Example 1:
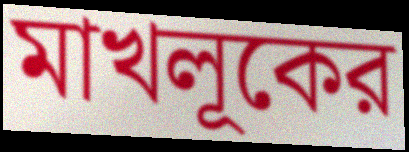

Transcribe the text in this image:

মাখলূকের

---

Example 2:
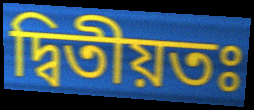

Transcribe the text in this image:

দ্বিতীয়তঃ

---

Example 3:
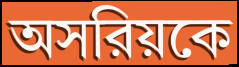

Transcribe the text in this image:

অসরিয়কে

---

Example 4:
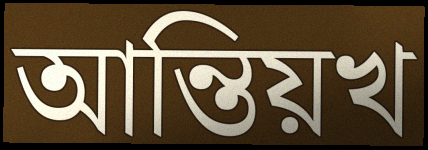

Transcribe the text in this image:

আন্তিয়খ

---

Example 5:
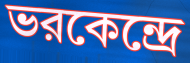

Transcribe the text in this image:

ভরকেন্দ্রে